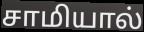
சாமியால்